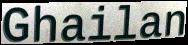
Ghailan